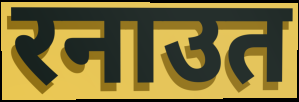
रनाउत